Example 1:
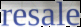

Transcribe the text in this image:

resale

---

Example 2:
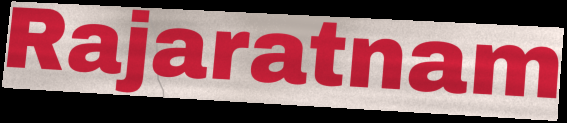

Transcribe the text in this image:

Rajaratnam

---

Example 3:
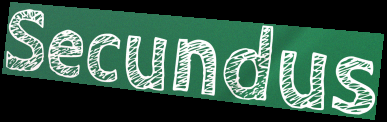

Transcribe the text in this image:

Secundus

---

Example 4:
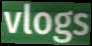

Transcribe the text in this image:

vlogs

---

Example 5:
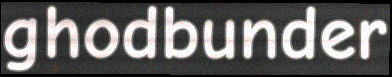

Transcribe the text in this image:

ghodbunder